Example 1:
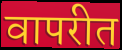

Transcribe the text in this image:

वापरीत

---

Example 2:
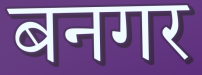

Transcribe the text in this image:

बनगर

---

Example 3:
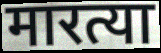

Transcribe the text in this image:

मारत्या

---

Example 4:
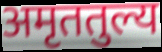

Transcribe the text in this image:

अमृततुल्य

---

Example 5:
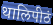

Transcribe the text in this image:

थालिपीठं